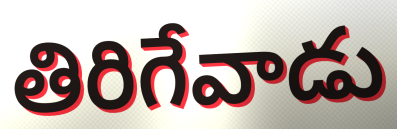
తిరిగేవాడు